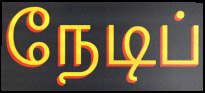
நேடிப்